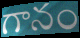
గానం